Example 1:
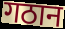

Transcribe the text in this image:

गठान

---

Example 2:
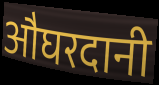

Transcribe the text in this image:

औघरदानी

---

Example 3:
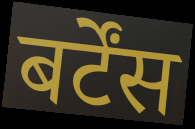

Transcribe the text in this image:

बर्टेंस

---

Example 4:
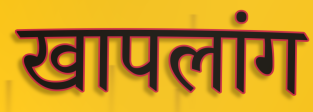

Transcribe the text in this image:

खापलांग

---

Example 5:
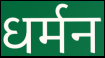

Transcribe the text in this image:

धर्मन